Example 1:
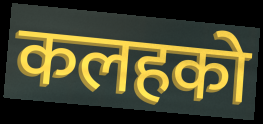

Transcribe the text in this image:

कलहको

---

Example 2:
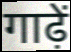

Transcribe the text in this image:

गाढ़ें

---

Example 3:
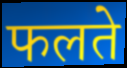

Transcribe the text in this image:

फलते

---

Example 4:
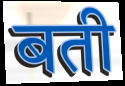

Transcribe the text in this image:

बती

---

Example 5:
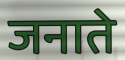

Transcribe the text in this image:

जनाते